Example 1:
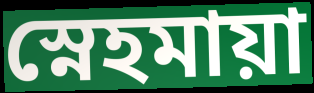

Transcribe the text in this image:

স্নেহমায়া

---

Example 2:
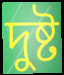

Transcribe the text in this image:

দুষ্ট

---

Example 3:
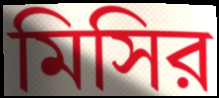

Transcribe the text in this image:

মিসির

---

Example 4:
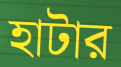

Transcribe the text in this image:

হাটার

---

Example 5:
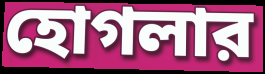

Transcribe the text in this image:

হোগলার